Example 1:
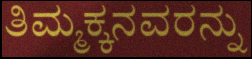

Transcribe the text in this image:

ತಿಮ್ಮಕ್ಕನವರನ್ನು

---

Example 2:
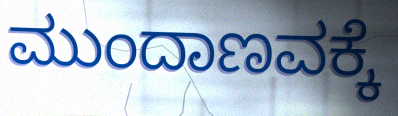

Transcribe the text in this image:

ಮುಂದಾಣವಕ್ಕೆ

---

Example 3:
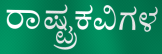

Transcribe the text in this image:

ರಾಷ್ಟ್ರಕವಿಗಳ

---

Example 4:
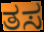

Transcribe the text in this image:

ತಸ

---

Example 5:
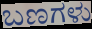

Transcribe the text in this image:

ಬಣಗಳು